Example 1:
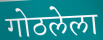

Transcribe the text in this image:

गोठलेला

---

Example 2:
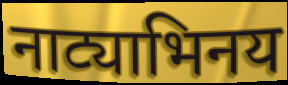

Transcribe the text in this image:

नाट्याभिनय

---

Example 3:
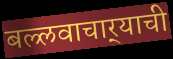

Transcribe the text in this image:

बल्लवाचार्याची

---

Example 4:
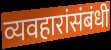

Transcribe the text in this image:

व्यवहारांसंबंधी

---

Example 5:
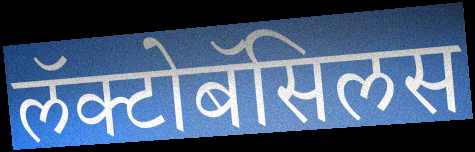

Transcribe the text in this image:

लॅक्टोबॅसिलस